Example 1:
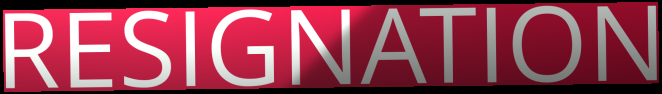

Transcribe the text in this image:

RESIGNATION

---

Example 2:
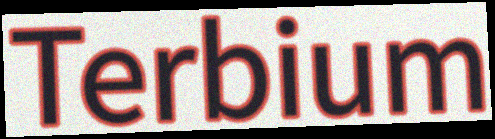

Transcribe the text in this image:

Terbium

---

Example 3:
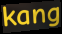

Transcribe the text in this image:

kang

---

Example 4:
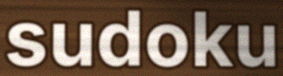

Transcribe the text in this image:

sudoku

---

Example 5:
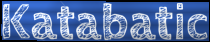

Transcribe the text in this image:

Katabatic